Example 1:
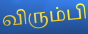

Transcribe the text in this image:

விரும்பி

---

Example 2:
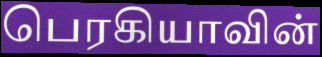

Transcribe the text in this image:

பெரகியாவின்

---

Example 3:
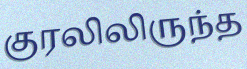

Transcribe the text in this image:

குரலிலிருந்த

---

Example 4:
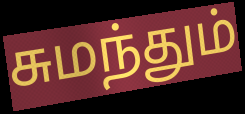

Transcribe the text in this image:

சுமந்தும்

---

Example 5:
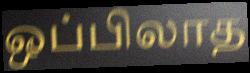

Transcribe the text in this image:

ஒப்பிலாத